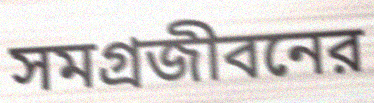
সমগ্রজীবনের